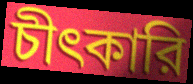
চীৎকারি